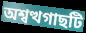
অশ্বত্থগাছটি